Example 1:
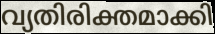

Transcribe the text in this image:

വ്യതിരിക്തമാക്കി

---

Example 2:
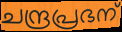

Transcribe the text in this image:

ചന്ദ്രപ്രഭന്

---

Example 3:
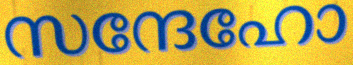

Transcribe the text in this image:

സന്ദേഹോ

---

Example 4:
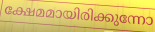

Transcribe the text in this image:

ക്ഷേമമായിരിക്കുന്നോ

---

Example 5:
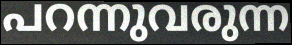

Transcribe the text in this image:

പറന്നുവരുന്ന